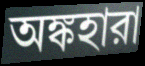
অঙ্কহারা